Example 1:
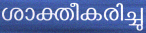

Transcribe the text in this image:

ശാക്തീകരിച്ചു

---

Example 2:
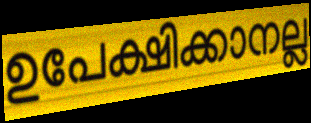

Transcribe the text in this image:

ഉപേക്ഷിക്കാനല്ല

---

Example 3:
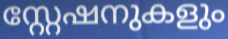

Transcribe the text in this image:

സ്റ്റേഷനുകളും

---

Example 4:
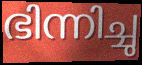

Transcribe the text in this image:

ഭിന്നിച്ചു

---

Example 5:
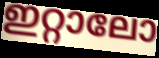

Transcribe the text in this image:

ഇറ്റാലോ